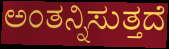
ಅಂತನ್ನಿಸುತ್ತದೆ